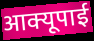
आक्यूपाई